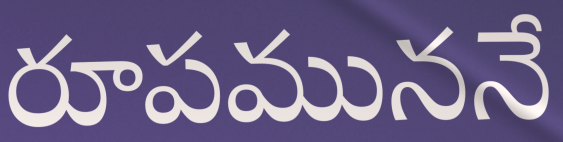
రూపముననే